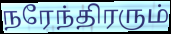
நரேந்திரரும்